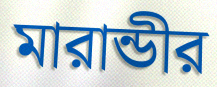
মারান্ডীর